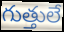
గుత్తులే